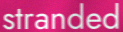
stranded